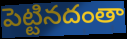
పెట్టినదంతా